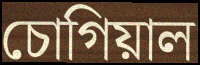
চোগিয়াল